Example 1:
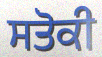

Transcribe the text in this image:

ਸਤੋਕੀ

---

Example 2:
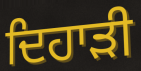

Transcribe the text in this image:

ਦਿਹਾੜੀ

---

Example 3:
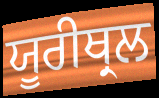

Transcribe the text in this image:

ਯੂਰੀਥ੍ਰਲ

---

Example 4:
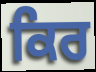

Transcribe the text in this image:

ਕਿਰ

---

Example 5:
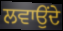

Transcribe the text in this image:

ਲਵਾਉਂਦੇ